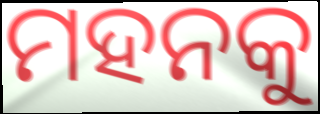
ମହନକୁ